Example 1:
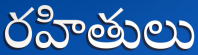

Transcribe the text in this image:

రహితులు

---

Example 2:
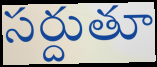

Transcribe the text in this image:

సర్దుతూ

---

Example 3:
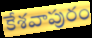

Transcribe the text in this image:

కేశవాపురం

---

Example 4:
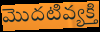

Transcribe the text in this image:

మొదటివ్యక్తి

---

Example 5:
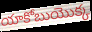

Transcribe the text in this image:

యాకోబుయొక్క